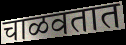
चाळवतात